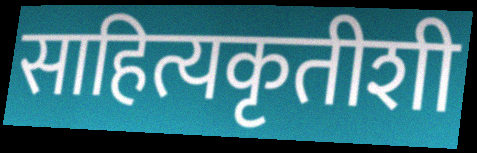
साहित्यकृतीशी